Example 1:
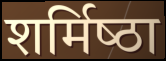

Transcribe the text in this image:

शर्मिष्‍ठा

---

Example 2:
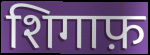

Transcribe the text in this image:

शिगाफ़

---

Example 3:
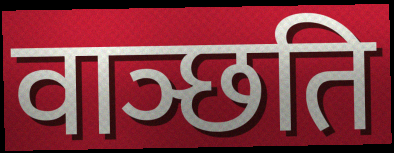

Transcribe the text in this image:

वाञ्छति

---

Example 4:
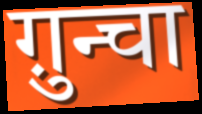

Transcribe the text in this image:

ग़ुन्चा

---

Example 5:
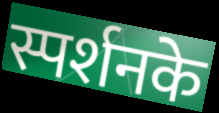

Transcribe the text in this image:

स्पर्शनके